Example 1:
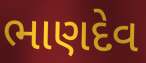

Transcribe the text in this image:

ભાણદેવ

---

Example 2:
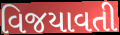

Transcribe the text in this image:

વિજયાવતી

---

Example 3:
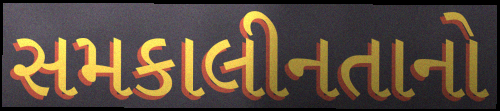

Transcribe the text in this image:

સમકાલીનતાનો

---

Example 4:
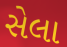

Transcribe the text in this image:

સેલા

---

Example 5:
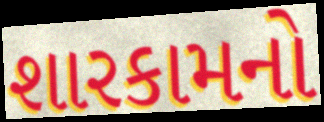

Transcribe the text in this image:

શારકામનો